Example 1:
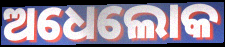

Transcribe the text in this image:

ଅଧେଲୋକ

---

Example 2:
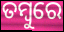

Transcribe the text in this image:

ତମ୍ବୁରେ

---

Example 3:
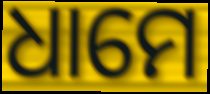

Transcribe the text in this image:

ଧାମେ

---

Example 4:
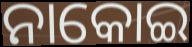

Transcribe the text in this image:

ନାକୋଇ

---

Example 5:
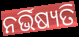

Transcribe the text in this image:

ନର୍ଭିଷ୍ୟତି